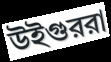
উইগুররা